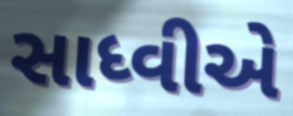
સાધ્વીએ